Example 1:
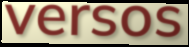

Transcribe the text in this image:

versos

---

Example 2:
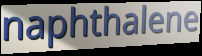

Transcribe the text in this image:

naphthalene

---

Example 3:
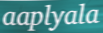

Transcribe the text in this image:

aaplyala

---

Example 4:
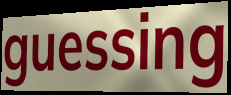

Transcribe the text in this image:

guessing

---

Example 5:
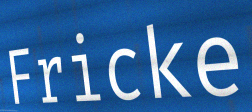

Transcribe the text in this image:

Fricke